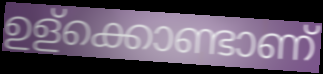
ഉള്ക്കൊണ്ടാണ്